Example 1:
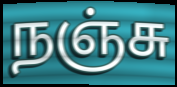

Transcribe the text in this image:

நஞ்சு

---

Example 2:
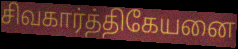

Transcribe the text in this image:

சிவகார்த்திகேயனை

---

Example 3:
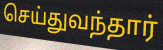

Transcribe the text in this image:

செய்துவந்தார்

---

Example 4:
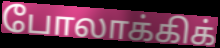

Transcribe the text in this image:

போலாக்கிக்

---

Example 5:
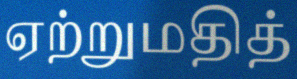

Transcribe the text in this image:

ஏற்றுமதித்